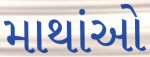
માથાંઓ